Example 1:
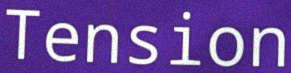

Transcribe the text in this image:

Tension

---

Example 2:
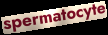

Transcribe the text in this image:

spermatocyte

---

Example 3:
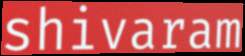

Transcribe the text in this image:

shivaram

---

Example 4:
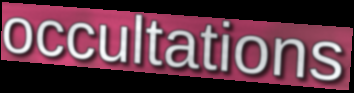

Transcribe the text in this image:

occultations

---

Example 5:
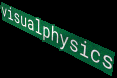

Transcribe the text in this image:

visualphysics